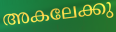
അകലേക്കു